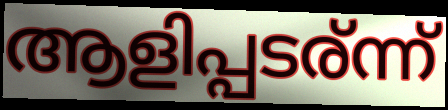
ആളിപ്പടര്ന്ന്